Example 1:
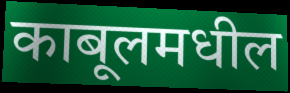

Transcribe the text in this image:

काबूलमधील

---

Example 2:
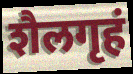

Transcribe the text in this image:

शैलगृहं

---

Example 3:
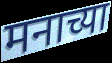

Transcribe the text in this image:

मनाच्‍या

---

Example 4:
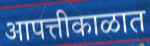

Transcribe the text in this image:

आपत्तीकाळात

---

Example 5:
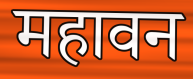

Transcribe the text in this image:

महावन